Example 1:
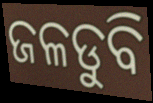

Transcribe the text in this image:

ଜଳଡୁବି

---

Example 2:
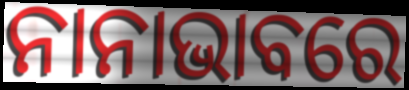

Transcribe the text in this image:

ନାନାଭାବରେ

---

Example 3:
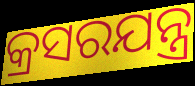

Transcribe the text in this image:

କ୍ରସରଯନ୍ତ୍ର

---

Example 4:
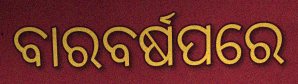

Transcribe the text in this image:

ବାରବର୍ଷପରେ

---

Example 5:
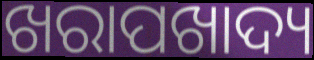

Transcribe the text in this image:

ଖରାପଖାଦ୍ୟ